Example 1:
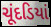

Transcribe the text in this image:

ચૂંદડિયાં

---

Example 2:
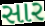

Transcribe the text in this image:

સાર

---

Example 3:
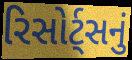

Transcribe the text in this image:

રિસોર્ટ્સનું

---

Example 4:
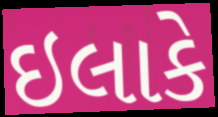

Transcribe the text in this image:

ઇલાકે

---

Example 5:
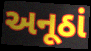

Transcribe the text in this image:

અનૂઠાં